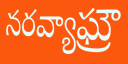
నరవ్యాఘ్రౌ